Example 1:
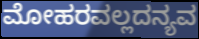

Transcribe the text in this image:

ಮೋಹರವಲ್ಲದನ್ಯವ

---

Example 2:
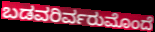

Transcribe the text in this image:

ಬಡವರಿರ್ವರುಮೊಂದೆ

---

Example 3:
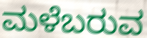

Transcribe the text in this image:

ಮಳೆಬರುವ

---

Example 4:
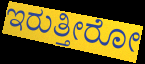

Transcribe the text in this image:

ಇರುತ್ತೀರೋ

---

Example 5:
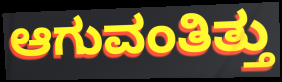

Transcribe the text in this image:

ಆಗುವಂತಿತ್ತು